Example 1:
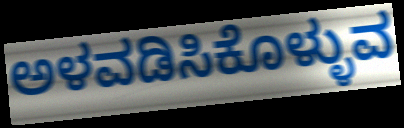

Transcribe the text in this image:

ಅಳವಡಿಸಿಕೊಳ್ಳುವ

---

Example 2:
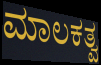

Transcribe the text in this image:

ಮಾಲಕತ್ವ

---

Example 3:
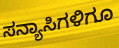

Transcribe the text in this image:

ಸನ್ಯಾಸಿಗಳಿಗೂ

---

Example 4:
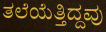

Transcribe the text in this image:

ತಲೆಯೆತ್ತಿದ್ದವು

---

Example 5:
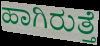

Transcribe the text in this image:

ಹಾಗಿರುತ್ತೆ